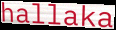
hallaka